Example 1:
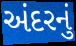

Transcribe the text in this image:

અંદરનું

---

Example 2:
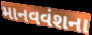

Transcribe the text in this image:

માનવવંશના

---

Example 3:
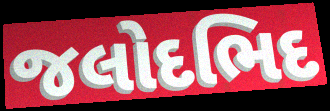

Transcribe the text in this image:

જલોદભિદ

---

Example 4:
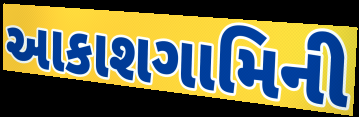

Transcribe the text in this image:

આકાશગામિની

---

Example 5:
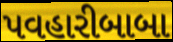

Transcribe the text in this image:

પવહારીબાબા